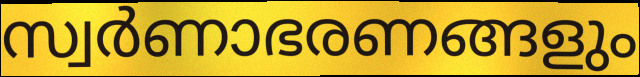
സ്വർണാഭരണങ്ങളും